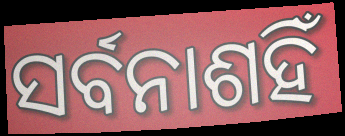
ସର୍ବନାଶହିଁ